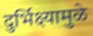
दुर्भिक्ष्यामुळे